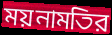
ময়নামতির